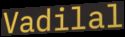
Vadilal